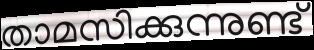
താമസിക്കുന്നുണ്ട്